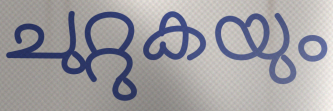
ചുറ്റുകയും